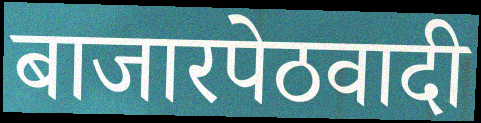
बाजारपेठवादी